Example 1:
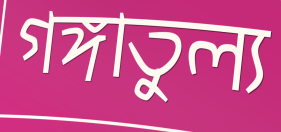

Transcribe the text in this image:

গঙ্গাতুল্য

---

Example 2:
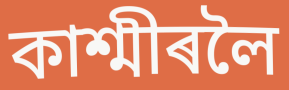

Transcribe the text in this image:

কাশ্মীৰলৈ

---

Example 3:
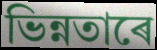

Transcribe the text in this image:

ভিন্নতাৰে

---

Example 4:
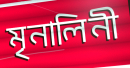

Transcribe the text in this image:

মৃনালিনী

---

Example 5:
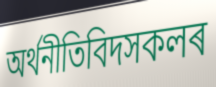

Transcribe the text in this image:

অৰ্থনীতিবিদসকলৰ